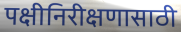
पक्षीनिरीक्षणासाठी